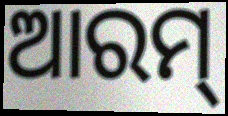
ଆରମ୍